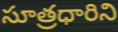
సూత్రధారిని